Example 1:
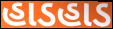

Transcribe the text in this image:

હાડહાડ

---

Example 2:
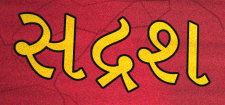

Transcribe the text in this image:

સદ્રશ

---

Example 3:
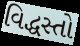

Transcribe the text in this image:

વિદ્ધસ્તો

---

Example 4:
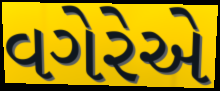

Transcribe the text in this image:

વગેરેએ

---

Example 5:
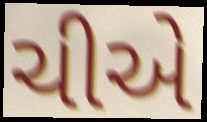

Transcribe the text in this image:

ચીએ